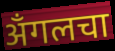
अँगलचा